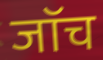
जॉच